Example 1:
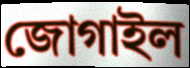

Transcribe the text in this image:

জোগাইল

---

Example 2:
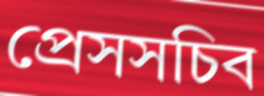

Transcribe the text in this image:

প্রেসসচিব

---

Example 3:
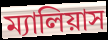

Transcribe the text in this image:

ম্যালিয়াস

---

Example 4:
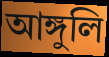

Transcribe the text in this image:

আঙ্গুলি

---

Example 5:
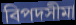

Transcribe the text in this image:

বিপদসীমা